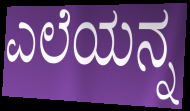
ಎಲೆಯನ್ನ